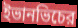
ইভানভিচের